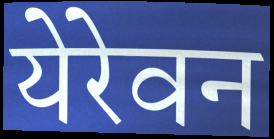
येरेवन